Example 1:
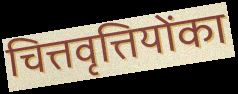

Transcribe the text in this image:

चित्तवृत्तियोंका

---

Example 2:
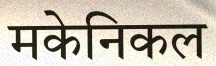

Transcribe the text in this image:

मकेनिकल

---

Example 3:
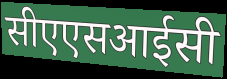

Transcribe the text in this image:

सीएएसआईसी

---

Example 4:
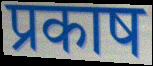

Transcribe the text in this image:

प्रकाष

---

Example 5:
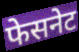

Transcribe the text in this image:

फेसनेट